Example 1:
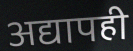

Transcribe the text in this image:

अद्यापही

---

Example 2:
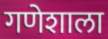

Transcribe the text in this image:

गणेशाला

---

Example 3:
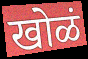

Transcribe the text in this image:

खोळं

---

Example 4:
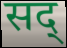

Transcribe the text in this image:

सद्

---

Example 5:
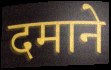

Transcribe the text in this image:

दमाने